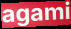
agami